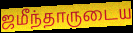
ஜமீந்தாருடைய